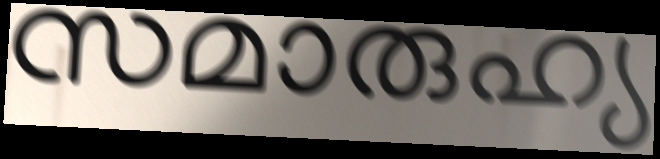
സമാരുഹ്യ